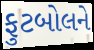
ફુટબોલને